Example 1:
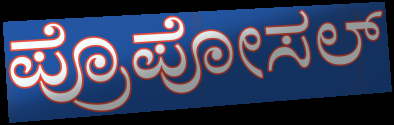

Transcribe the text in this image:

ಪ್ರೊಪೋಸಲ್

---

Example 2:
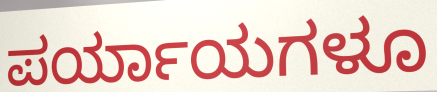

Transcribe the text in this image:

ಪರ್ಯಾಯಗಳೂ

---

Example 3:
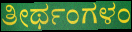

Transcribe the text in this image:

ತೀರ್ಥಂಗಳಂ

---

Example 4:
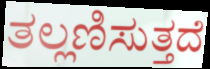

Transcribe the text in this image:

ತಲ್ಲಣಿಸುತ್ತದೆ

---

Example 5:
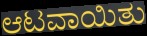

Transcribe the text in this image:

ಆಟವಾಯಿತು